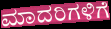
ಮಾದರಿಗಳಿಗೆ